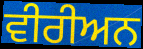
ਵੀਰੀਅਨ